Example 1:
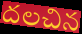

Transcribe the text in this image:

దలచిన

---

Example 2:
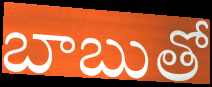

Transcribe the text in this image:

బాబుతో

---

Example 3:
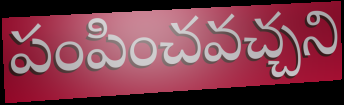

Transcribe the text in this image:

పంపించవచ్చని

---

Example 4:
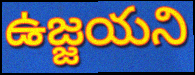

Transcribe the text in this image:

ఉజ్జయని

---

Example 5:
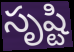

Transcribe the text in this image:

సృష్టి